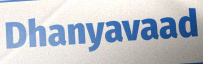
Dhanyavaad